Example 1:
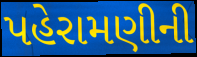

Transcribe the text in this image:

પહેરામણીની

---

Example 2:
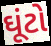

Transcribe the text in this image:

ઘૂંટો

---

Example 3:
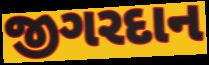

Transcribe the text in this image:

જીગરદાન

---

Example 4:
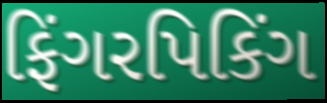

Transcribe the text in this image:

ફિંગરપિકિંગ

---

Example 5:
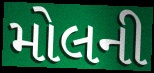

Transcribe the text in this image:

મોલની